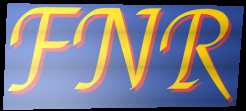
FNR